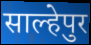
साल्हेपुर